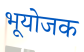
भूयोजक